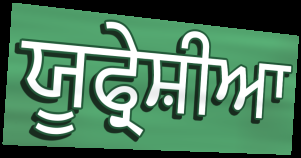
ਯੂਫ੍ਰੇਸ਼ੀਆ